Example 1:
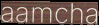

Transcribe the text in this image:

aamcha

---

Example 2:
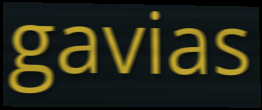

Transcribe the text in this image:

gavias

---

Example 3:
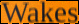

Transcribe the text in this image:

Wakes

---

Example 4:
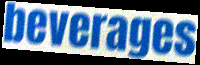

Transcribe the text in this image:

beverages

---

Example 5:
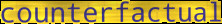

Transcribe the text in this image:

counterfactual